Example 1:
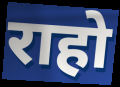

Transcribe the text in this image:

राहो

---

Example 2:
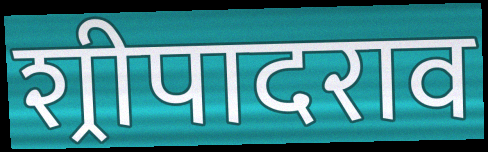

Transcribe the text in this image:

श्रीपादराव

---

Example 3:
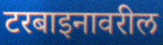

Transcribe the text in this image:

टरबाइनावरील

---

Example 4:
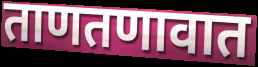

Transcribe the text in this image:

ताणतणावात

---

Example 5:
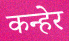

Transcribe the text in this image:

कन्हेर